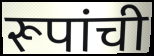
रूपांची